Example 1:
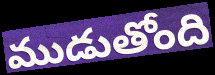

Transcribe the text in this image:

ముడుతోంది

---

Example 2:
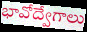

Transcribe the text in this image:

భావోద్వేగాలు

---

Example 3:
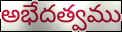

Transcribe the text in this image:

అభేదత్వము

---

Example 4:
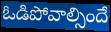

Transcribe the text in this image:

ఓడిపోవాల్సిందే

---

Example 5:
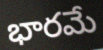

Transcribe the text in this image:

భారమే